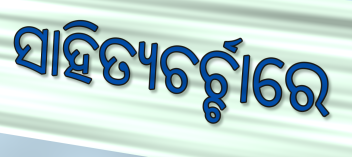
ସାହିତ୍ୟଚର୍ଚ୍ଚାରେ